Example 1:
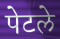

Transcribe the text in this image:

पेटले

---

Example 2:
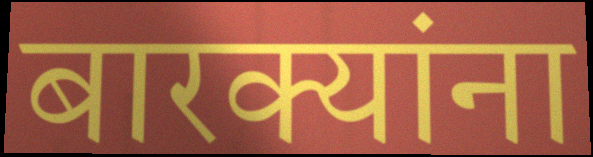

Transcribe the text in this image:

बारक्यांना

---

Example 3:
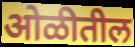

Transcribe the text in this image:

ओळीतील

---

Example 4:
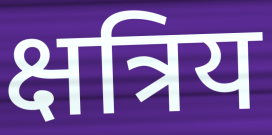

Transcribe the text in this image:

क्षत्रिय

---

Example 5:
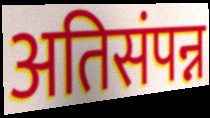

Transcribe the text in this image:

अतिसंपन्न